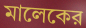
মালেকের